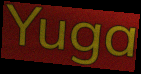
Yuga